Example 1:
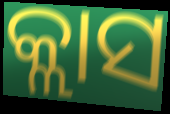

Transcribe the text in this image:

କ୍ଲାସ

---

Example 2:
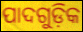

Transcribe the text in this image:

ପାଦଗୁଡ଼ିକ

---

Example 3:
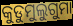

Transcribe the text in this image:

କୁଡୁମୁଲୁଗୁମା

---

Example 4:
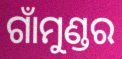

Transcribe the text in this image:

ଗାଁମୁଣ୍ଡର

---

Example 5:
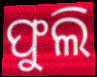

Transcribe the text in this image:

ଫୁଲି